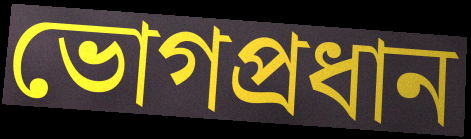
ভোগপ্রধান